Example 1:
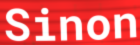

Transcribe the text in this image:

Sinon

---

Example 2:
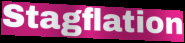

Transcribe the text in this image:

Stagflation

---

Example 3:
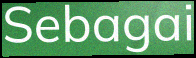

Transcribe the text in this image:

Sebagai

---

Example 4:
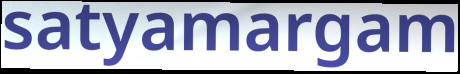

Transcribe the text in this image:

satyamargam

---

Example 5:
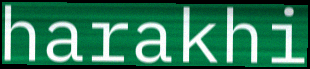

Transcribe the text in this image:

harakhi